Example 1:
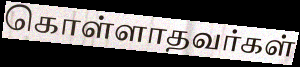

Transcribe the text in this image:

கொள்ளாதவர்கள்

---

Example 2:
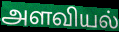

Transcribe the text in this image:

அளவியல்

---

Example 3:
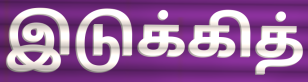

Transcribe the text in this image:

இடுக்கித்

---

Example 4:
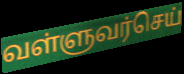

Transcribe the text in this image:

வள்ளுவர்செய்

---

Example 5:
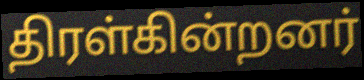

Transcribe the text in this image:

திரள்கின்றனர்